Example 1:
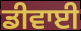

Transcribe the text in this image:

ਡੀਵਾਈ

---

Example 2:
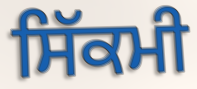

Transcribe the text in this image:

ਸਿੱਕਮੀ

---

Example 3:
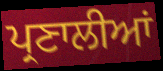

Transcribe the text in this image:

ਪ੍ਰਣਾਲੀਆਂ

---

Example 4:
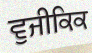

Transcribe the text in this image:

ਵੁਜੀਕਿਕ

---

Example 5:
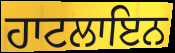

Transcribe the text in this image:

ਹਾਟਲਾਇਨ